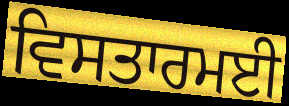
ਵਿਸਤਾਰਮਈ